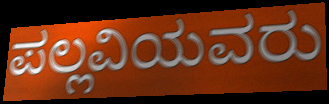
ಪಲ್ಲವಿಯವರು